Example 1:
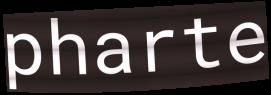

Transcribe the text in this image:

pharte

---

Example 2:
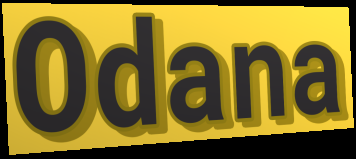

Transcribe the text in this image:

Odana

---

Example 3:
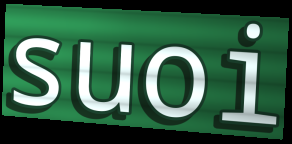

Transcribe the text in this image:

suoi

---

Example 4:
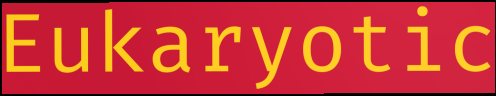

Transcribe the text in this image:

Eukaryotic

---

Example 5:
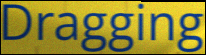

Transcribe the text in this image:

Dragging